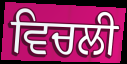
ਵਿਚਲੀ